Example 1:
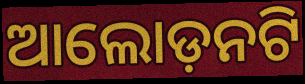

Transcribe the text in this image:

ଆଲୋଡ଼ନଟି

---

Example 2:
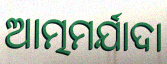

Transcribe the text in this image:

ଆତ୍ମମର୍ଯାଦା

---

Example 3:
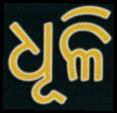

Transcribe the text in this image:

ଧୂଳି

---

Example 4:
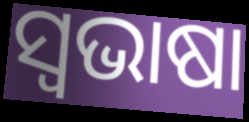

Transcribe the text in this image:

ସ୍ୱଭାଷା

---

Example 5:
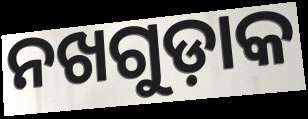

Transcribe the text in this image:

ନଖଗୁଡ଼ାକ